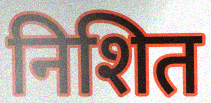
निशित